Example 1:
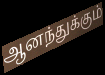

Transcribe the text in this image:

ஆனந்துக்கும்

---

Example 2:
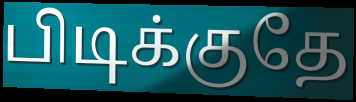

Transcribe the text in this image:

பிடிக்குதே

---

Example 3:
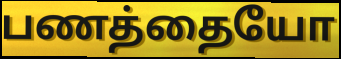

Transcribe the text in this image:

பணத்தையோ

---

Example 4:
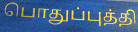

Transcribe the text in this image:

பொதுப்புத்தி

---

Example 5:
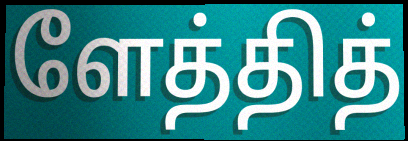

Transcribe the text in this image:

ளேத்தித்